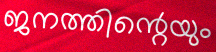
ജനത്തിന്റെയും